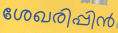
ശേഖരിപ്പിൻ